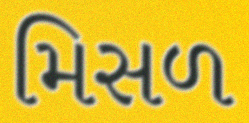
મિસળ